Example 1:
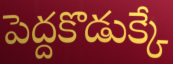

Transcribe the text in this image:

పెద్దకొడుక్కే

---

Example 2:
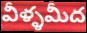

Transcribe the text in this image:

వీళ్ళమీద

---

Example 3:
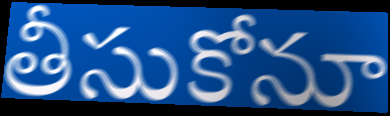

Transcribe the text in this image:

తీసుకోనూ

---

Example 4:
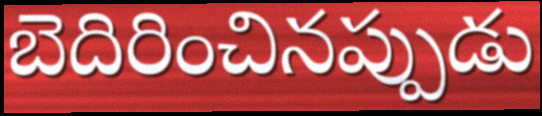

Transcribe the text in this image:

బెదిరించినప్పుడు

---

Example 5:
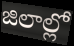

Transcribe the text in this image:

జిలాల్లో